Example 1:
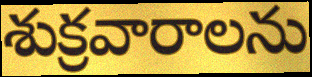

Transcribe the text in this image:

శుక్రవారాలను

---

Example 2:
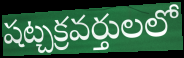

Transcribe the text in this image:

షట్చక్రవర్తులలో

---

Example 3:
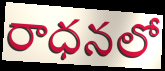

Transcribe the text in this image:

రాధనలో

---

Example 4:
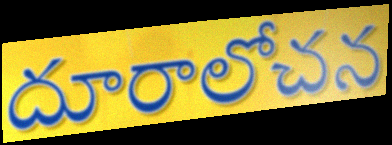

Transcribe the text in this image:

దూరాలోచన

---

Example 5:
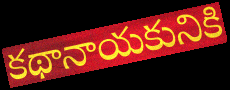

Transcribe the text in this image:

కథానాయకునికి